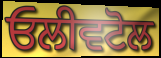
ਓਲੀਵਟੋਲ